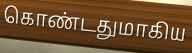
கொண்டதுமாகிய